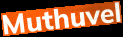
Muthuvel